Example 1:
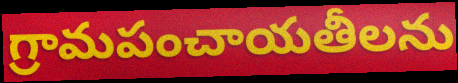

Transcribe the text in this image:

గ్రామపంచాయతీలను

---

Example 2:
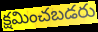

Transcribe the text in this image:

క్షమించబడరు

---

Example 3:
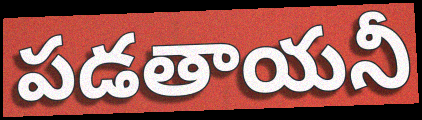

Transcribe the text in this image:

పడతాయనీ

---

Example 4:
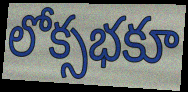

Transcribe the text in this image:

లోక్సభకూ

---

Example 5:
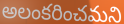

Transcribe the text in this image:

అలంకరించమని